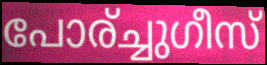
പോര്ച്ചുഗീസ്